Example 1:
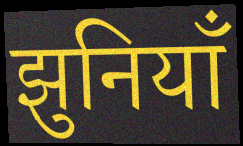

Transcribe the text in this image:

झुनियाँ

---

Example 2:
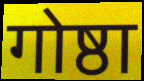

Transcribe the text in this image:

गोष्ठा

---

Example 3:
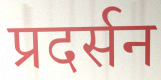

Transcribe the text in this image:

प्रदर्सन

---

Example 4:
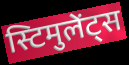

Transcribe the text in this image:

स्टिमुलेंट्स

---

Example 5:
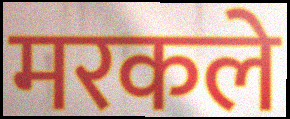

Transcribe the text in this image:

मरकले